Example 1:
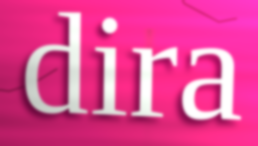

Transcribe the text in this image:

dira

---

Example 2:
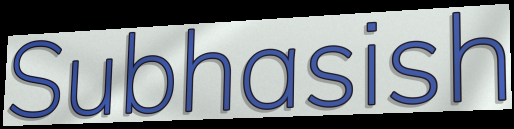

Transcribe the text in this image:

Subhasish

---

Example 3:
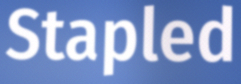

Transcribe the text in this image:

Stapled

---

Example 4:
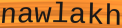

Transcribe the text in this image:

nawlakh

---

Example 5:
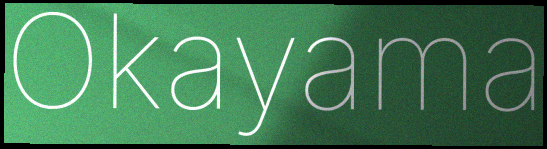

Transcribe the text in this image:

Okayama